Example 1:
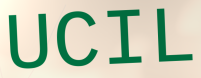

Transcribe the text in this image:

UCIL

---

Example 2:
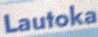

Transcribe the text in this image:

Lautoka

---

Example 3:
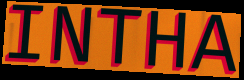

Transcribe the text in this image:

INTHA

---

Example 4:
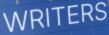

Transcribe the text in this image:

WRITERS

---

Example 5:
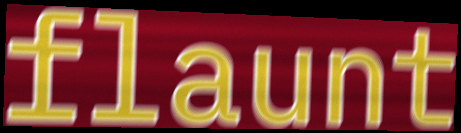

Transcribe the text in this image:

flaunt